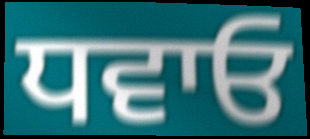
ਧਵਾਓ